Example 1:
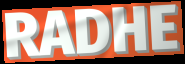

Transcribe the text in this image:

RADHE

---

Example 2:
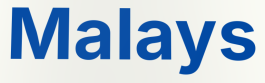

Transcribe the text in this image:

Malays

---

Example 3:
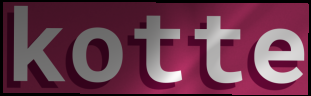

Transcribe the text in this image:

kotte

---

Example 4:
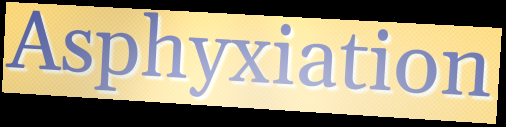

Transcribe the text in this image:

Asphyxiation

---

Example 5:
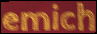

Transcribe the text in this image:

emich